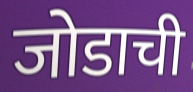
जोडाची